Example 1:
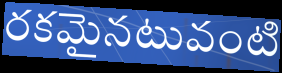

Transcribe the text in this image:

రకమైనటువంటి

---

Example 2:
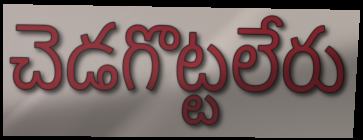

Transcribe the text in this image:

చెడగొట్టలేరు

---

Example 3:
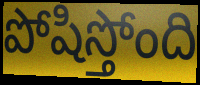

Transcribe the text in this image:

పోషిస్తోంది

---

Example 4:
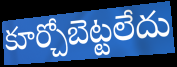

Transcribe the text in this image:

కూర్చోబెట్టలేదు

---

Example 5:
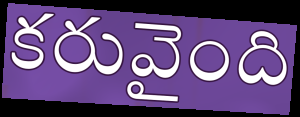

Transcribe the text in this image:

కరువైంది